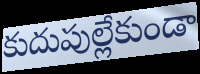
కుదుపుల్లేకుండా